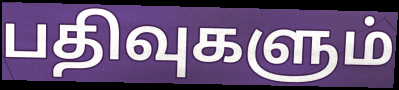
பதிவுகளும்